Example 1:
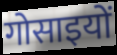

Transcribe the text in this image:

गोसाइयों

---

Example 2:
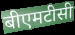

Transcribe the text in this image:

बीएमटीसी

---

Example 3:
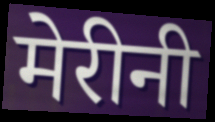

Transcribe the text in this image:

मेरीनी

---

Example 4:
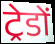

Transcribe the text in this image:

ट्रेडों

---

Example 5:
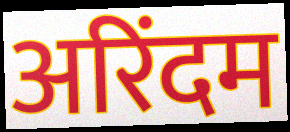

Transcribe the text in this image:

अरिंदम